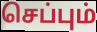
செப்பும்